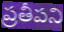
ప్రతీపని